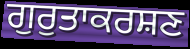
ਗੁਰੁਤਾਕਰਸ਼ਣ